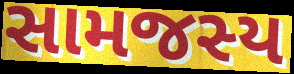
સામજસ્ય